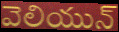
వెలియున్